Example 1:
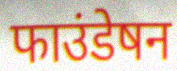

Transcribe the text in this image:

फाउंडेषन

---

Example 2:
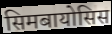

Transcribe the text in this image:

सिमबायोसिस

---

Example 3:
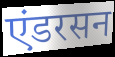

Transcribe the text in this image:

एंडरसन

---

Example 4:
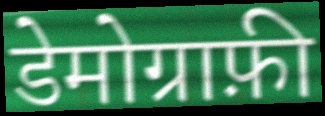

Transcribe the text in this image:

डेमोग्राफ़ी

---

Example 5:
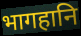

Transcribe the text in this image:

भागहानि